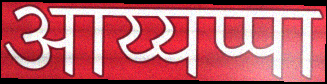
आय्यप्पा